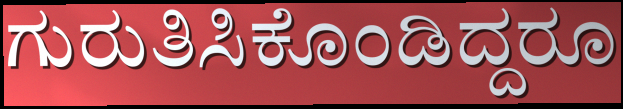
ಗುರುತಿಸಿಕೊಂಡಿದ್ದರೂ